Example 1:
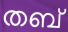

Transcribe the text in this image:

തബ്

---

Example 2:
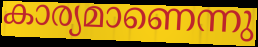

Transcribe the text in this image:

കാര്യമാണെന്നു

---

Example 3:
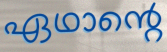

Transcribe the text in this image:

ഏഥാന്റെ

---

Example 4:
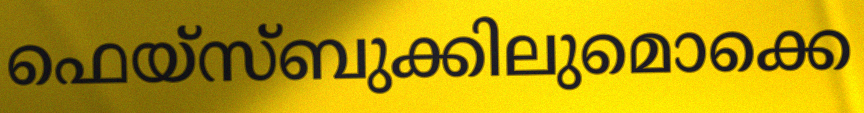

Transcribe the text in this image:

ഫെയ്സ്ബുക്കിലുമൊക്കെ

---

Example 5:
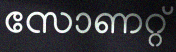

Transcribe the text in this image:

സോണറ്റ്